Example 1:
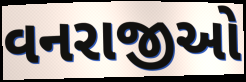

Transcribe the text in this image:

વનરાજીઓ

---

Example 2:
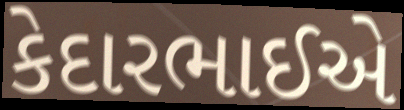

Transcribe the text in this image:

કેદારભાઈએ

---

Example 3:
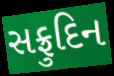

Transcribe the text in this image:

સફ્રુદિન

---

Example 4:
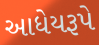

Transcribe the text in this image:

આધેયરૂપે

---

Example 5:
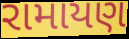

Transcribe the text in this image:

રામાયણ